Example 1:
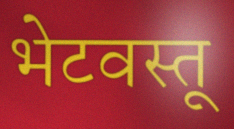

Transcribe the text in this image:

भेटवस्तू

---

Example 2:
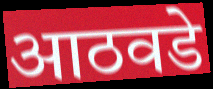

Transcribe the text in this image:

आठवडे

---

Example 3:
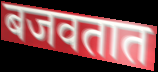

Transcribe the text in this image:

बजवतात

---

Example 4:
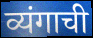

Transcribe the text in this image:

व्यंगाची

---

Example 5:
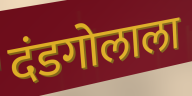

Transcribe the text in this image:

दंडगोलाला